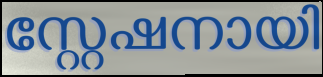
സ്റ്റേഷനായി